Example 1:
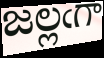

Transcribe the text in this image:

జల్లఁగా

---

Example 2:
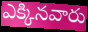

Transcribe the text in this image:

ఎక్కినవారు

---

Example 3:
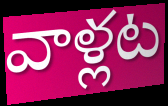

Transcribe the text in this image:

వాళ్లట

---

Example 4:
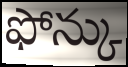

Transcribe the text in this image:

ఫోన్కు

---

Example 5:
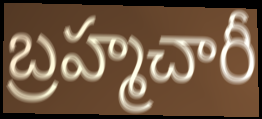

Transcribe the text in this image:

బ్రహ్మచారీ